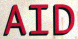
AID